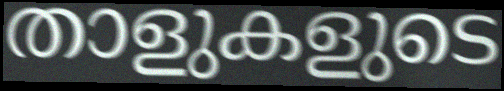
താളുകളുടെ